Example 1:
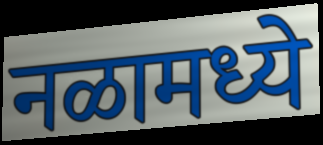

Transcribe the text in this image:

नळामध्ये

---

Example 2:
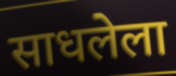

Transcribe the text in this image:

साधलेला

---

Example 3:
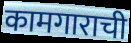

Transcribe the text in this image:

कामगाराची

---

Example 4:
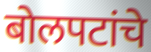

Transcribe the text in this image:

बोलपटांचे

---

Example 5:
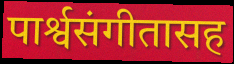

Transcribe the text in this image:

पार्श्वसंगीतासह